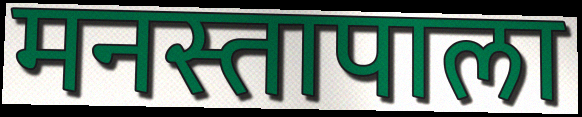
मनस्तापाला